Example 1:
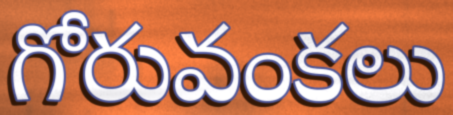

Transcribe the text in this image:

గోరువంకలు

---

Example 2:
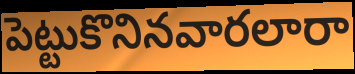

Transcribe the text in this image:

పెట్టుకొనినవారలారా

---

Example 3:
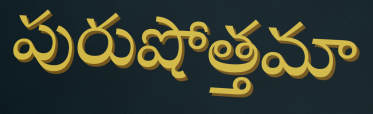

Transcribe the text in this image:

పురుషోత్తమా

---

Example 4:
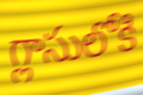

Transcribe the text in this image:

గ్లాసులోకి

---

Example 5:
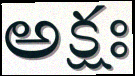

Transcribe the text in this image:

అక్షః